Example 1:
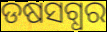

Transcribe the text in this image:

ଡଷସଗ୍ଧର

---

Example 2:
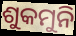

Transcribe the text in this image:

ଶୁକମୁନି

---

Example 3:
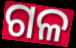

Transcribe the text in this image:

ଗଳ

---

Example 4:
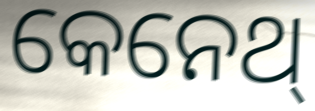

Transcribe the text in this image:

କେନେଥ୍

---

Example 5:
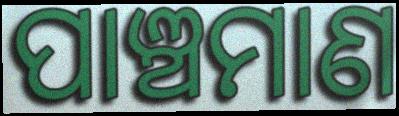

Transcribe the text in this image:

ପାଞ୍ଚମାଣ